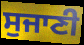
ਸੁਜਾਣੀ